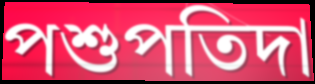
পশুপতিদা